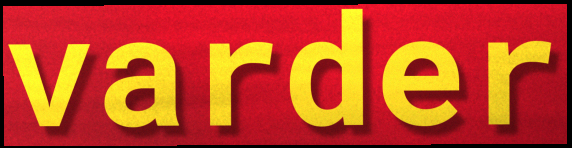
varder